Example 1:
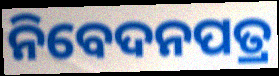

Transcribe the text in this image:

ନିବେଦନପତ୍ର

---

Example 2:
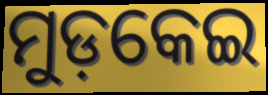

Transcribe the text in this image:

ମୁଡ଼କେଇ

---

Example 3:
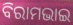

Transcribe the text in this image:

ବିରାମଭାଇ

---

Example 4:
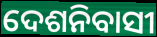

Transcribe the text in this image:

ଦେଶନିବାସୀ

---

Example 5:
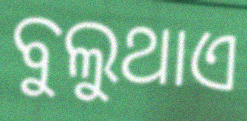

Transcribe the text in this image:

ବୁଲୁଥାଏ